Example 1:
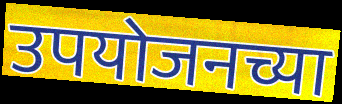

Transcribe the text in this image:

उपयोजनच्या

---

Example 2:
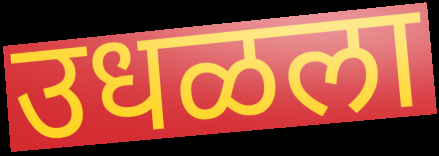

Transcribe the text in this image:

उधळला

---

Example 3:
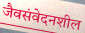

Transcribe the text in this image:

जैवसंवेदनशील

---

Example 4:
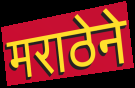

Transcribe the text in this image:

मराठेने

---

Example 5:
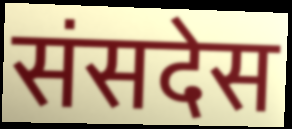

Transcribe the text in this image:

संसदेस